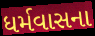
ધર્મવાસના